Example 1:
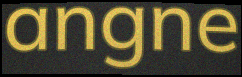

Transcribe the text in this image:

angne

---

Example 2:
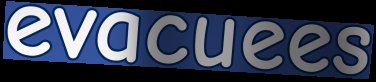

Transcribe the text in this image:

evacuees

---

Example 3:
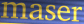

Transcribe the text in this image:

maser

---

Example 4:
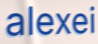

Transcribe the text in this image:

alexei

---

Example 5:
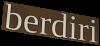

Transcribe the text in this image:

berdiri